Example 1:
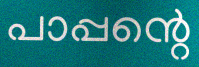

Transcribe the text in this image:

പാപ്പന്റെ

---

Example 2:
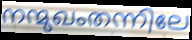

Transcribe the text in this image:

നന്മുഖംതന്നിലേ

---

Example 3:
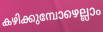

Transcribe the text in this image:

കഴിക്കുമ്പോഴെല്ലാം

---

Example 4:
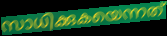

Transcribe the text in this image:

സാധിക്കുകയെന്നത്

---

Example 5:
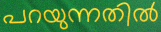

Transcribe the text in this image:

പറയുന്നതിൽ